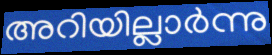
അറിയില്ലാർന്നു